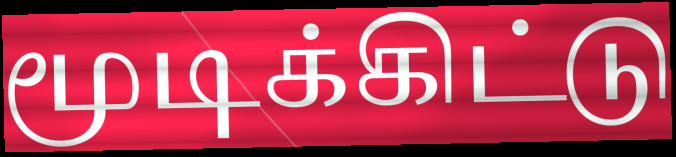
மூடிக்கிட்டு